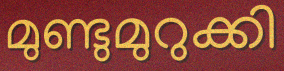
മുണ്ടുമുറുക്കി